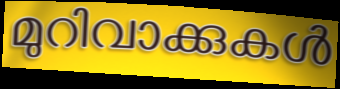
മുറിവാക്കുകൾ